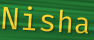
Nisha